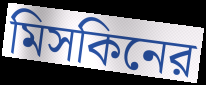
মিসকিনের